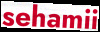
sehamii